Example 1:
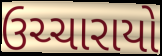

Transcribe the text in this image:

ઉચ્ચારાયો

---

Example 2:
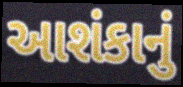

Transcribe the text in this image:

આશંકાનું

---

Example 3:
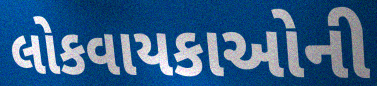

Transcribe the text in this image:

લોકવાયકાઓની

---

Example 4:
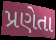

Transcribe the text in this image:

પ્રણેતા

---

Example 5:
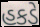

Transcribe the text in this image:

હકડે